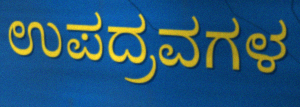
ಉಪದ್ರವಗಳ